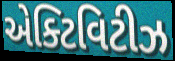
એક્ટિવિટીઝ